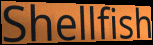
Shellfish